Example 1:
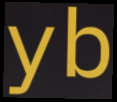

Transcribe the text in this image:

yb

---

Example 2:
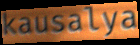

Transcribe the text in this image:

kausalya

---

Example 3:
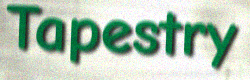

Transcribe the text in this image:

Tapestry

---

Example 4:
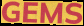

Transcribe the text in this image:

GEMS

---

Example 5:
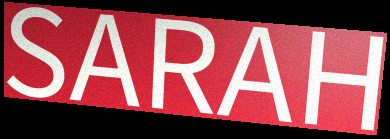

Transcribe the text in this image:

SARAH